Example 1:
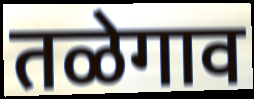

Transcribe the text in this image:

तळेगाव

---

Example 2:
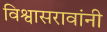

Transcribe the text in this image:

विश्वासरावांनी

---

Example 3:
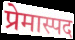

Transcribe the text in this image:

प्रेमास्पद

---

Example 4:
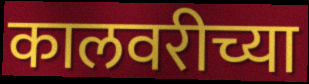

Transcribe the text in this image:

कालवरीच्या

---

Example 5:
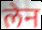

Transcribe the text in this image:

लेन